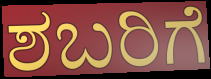
ಶಬರಿಗೆ